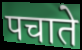
पचाते